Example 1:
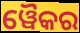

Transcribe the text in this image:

ୱୈକର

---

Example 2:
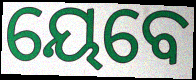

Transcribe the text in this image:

ୟେବେ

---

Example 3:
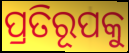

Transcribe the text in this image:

ପ୍ରତିରୂପକୁ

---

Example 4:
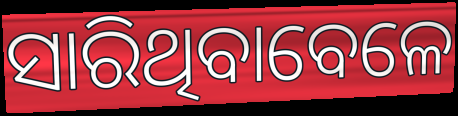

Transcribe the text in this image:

ସାରିଥିବାବେଳେ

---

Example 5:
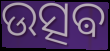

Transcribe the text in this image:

ଉତ୍ସଵ